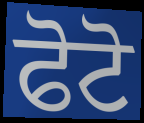
ਫੋਟੋ